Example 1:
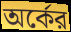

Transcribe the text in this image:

অর্কের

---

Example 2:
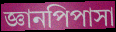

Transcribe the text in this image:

জ্ঞানপিপাসা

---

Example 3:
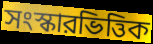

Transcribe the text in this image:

সংস্কারভিত্তিক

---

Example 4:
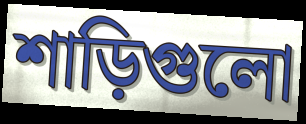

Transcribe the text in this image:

শাড়িগুলো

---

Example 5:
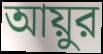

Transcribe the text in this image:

আয়ুর